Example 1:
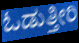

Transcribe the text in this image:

ಓಡುತ್ತೀರಿ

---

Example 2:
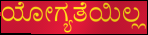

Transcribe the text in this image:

ಯೋಗ್ಯತೆಯಿಲ್ಲ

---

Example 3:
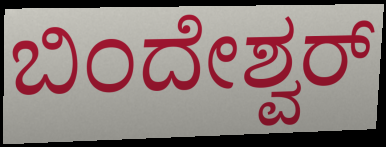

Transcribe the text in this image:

ಬಿಂದೇಶ್ವರ್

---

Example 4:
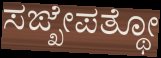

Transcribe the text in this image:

ಸಙ್ಖೇಪತ್ಥೋ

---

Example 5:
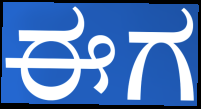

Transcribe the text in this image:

ಈಗ